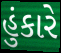
હુંકારે